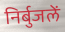
निर्बुजलें